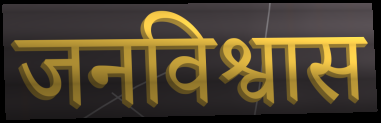
जनविश्वास